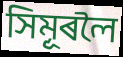
সিমূৰলৈ